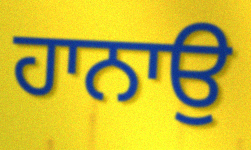
ਹਾਨਾਉ